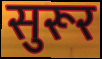
सुरूर